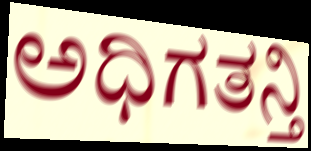
ಅಧಿಗತನ್ತಿ